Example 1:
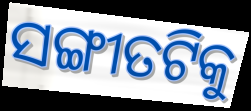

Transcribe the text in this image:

ସଙ୍ଗୀତଟିକୁ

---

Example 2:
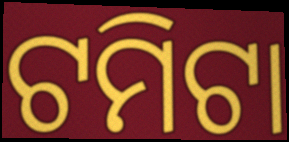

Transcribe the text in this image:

ଟମିଟା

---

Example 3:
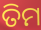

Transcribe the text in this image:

ତିମ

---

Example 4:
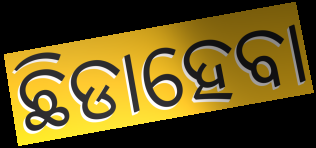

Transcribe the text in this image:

ଛିଡାହେବା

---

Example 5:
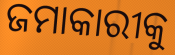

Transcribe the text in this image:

ଜମାକାରୀକୁ